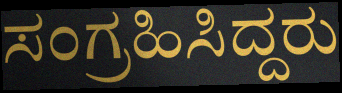
ಸಂಗ್ರಹಿಸಿದ್ದರು